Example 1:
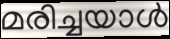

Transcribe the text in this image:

മരിച്ചയാൾ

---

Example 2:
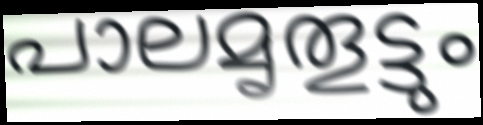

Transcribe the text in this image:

പാലമൃതൂട്ടും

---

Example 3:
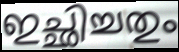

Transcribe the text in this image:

ഇച്ഛിച്ചതും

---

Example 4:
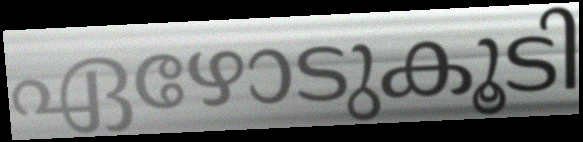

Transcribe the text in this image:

ഏഴോടുകൂടി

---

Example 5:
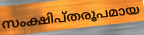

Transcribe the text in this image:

സംക്ഷിപ്തരൂപമായ